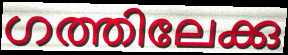
ഗത്തിലേക്കു